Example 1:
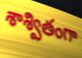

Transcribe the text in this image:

శాశ్వితంగా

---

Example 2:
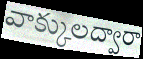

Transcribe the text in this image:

వాక్కులద్వారా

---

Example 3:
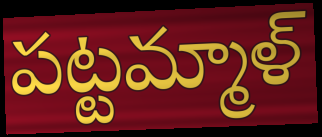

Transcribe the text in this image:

పట్టమ్మాళ్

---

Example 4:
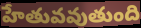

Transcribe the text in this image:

హేతువవుతుంది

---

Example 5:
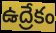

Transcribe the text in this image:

ఉద్రేకం